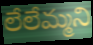
లేలేమ్మని